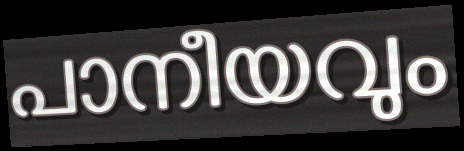
പാനീയവും